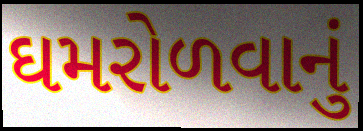
ઘમરોળવાનું